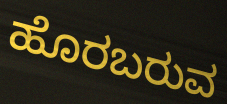
ಹೊರಬರುವ